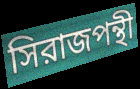
সিরাজপন্থী